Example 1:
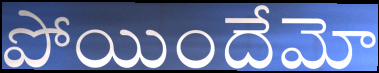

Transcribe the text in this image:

పోయిందేమో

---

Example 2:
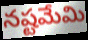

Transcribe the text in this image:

నష్టమేమి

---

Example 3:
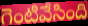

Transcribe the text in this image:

గెంటివేసింది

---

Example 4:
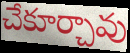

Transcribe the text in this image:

చేకూర్చావు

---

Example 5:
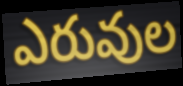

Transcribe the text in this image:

ఎరువుల